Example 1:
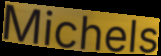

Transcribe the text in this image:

Michels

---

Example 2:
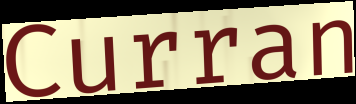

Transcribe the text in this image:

Curran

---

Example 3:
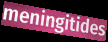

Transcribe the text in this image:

meningitides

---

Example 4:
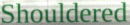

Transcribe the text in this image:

Shouldered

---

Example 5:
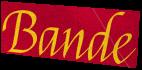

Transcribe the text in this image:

Bande